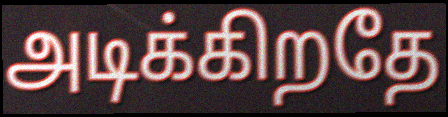
அடிக்கிறதே